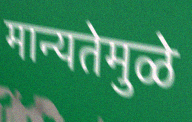
मान्यतेमुळे